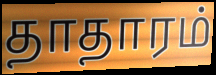
தாதாரம்